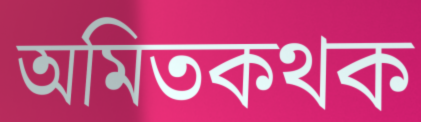
অমিতকথক